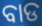
ବାଡ